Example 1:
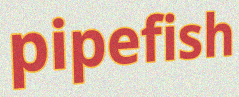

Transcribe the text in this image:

pipefish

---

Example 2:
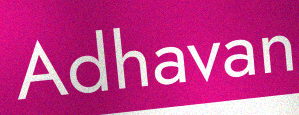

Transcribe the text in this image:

Adhavan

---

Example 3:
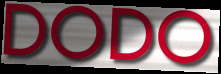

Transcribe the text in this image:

DODO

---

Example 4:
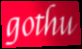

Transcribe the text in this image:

gothu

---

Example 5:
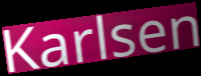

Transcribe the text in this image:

Karlsen